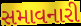
સમાવનારી